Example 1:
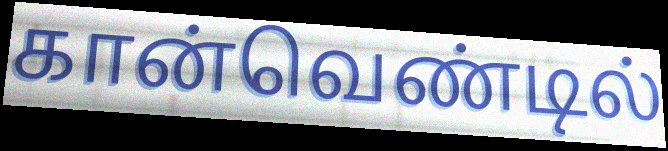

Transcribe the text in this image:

கான்வெண்டில்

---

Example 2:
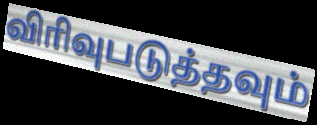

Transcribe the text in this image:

விரிவுபடுத்தவும்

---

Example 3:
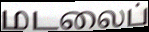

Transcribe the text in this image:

மடலைப்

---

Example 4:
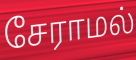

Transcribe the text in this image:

சேராமல்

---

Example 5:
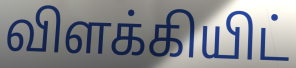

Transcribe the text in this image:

விளக்கியிட்